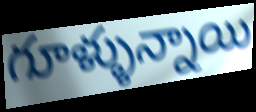
గూళ్ళున్నాయి